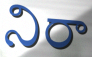
నిరా